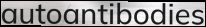
autoantibodies